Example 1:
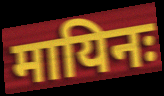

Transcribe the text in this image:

मायिनः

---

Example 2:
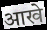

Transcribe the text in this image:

आखे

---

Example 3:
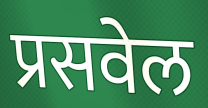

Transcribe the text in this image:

प्रसवेल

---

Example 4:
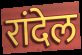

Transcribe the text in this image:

रांदेल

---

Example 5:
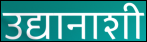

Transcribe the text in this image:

उद्यानाशी